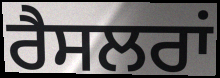
ਰੈਸਲਰਾਂ